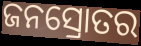
ଜନସ୍ରୋତର